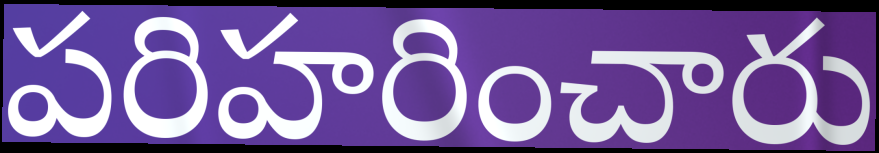
పరిహరించారు